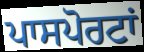
ਪਾਸਪੋਰਟਾਂ